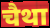
चैथा